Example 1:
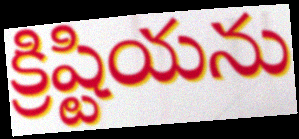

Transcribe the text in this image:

క్రిష్టియను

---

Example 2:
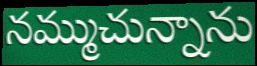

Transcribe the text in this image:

నమ్ముచున్నాను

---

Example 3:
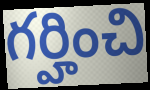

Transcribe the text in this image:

గర్హించి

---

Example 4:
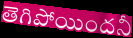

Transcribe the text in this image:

తెగిపోయిందనీ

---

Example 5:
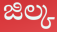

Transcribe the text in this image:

జిల్క